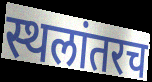
स्थलांतरच